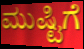
ಮುಷ್ಟಿಗೆ